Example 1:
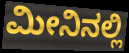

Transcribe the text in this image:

ಮೀನಿನಲ್ಲಿ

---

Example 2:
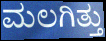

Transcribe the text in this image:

ಮಲಗಿತ್ತು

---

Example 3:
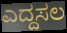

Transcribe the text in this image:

ಎದ್ದಸಲ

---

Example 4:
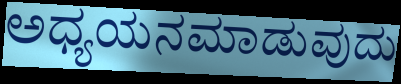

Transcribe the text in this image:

ಅಧ್ಯಯನಮಾಡುವುದು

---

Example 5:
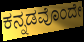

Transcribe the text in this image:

ಕನ್ನಡವೊಂದೇ